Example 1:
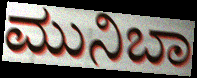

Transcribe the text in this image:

ಮುನಿಬಾ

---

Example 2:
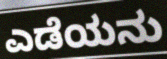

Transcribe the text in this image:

ಎಡೆಯನು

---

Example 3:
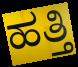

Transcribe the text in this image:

ಹತ್ತಿ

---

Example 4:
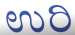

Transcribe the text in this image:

ಉರಿ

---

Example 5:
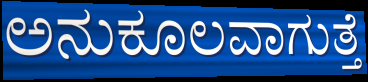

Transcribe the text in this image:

ಅನುಕೂಲವಾಗುತ್ತೆ